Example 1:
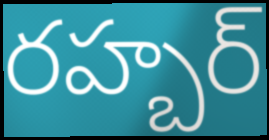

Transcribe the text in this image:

రహ్బర్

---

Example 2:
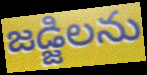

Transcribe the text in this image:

జడ్జిలను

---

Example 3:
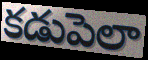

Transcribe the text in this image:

కడుపెలా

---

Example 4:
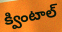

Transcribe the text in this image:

క్వింటాల్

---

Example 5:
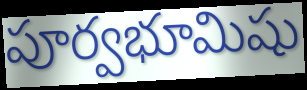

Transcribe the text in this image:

పూర్వభూమిషు